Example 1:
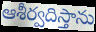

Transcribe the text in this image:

ఆశీర్వదిస్తాను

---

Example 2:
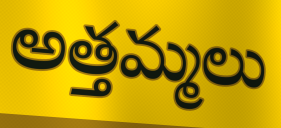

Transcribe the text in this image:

అత్తమ్మలు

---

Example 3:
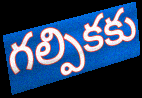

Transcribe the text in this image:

గల్పికకు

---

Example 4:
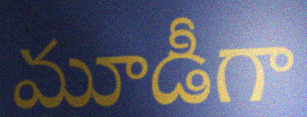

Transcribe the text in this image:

మూడీగా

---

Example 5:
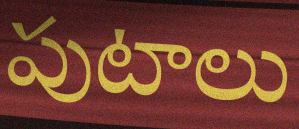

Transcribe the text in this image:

పుటాలు